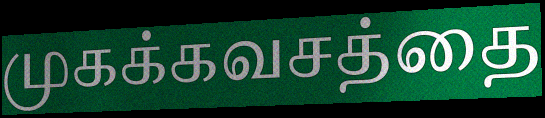
முகக்கவசத்தை